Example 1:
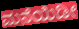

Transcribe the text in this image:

ಮನೆಯಿಡೀ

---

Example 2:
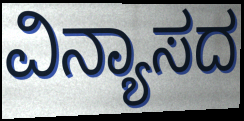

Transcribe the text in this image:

ವಿನ್ಯಾಸದ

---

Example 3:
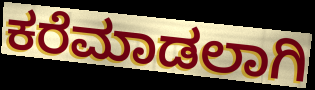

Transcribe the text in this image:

ಕರೆಮಾಡಲಾಗಿ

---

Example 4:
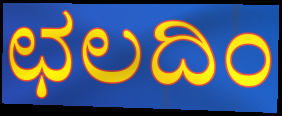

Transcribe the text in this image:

ಛಲದಿಂ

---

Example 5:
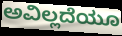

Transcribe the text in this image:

ಅವಿಲ್ಲದೆಯೂ